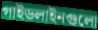
গাইডলাইনগুলো